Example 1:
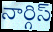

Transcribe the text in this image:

నార్గిస్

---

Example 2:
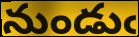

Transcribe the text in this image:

నుండుఁ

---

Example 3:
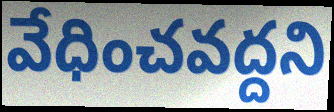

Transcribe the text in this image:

వేధించవద్దని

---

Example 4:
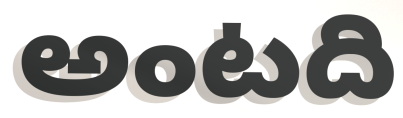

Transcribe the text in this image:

అంటది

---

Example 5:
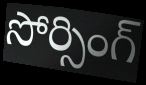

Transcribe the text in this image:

సోర్సింగ్